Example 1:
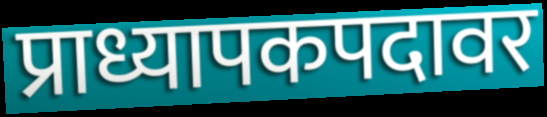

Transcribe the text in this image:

प्राध्यापकपदावर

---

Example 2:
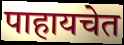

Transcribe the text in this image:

पाहायचेत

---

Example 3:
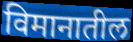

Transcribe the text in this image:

विमानातील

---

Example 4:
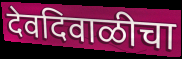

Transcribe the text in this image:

देवदिवाळीचा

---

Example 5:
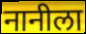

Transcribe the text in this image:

नानीला